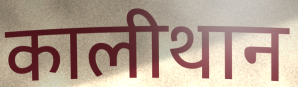
कालीथान